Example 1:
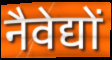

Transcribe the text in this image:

नैवेद्यों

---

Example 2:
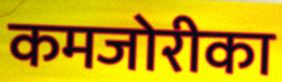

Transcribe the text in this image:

कमजोरीका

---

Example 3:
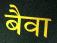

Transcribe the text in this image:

बैवा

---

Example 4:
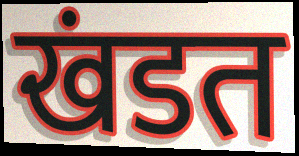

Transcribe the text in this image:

खंडत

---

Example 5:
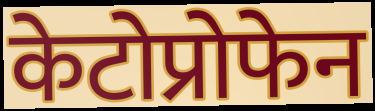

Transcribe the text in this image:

केटोप्रोफेन